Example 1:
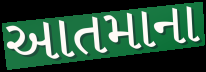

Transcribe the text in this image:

આતમાના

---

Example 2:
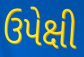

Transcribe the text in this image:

ઉપેક્ષી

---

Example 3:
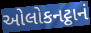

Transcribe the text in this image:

ઓલોકનટ્ઠાનં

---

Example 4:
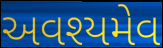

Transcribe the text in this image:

અવશ્યમેવ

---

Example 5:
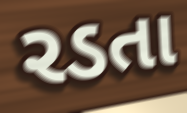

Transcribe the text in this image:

રડતા